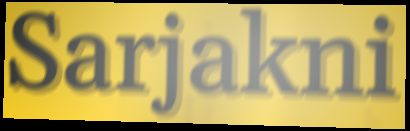
Sarjakni